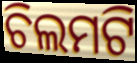
ଚିଲମଟି